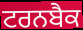
ਟਰਨਬੈਕ